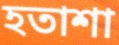
হতাশা